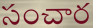
సంచార